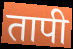
तापी